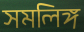
সমলিঙ্গ